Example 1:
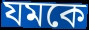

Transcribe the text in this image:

যমকে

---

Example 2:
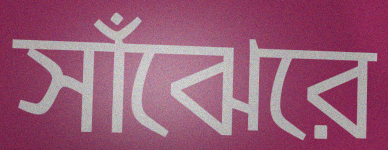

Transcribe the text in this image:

সাঁঝেরে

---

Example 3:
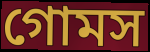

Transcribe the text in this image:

গোমস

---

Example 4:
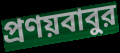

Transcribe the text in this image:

প্রণয়বাবুর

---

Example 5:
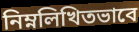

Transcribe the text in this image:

নিম্নলিখিতভাবে